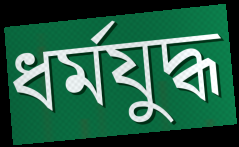
ধর্মযুদ্ধ